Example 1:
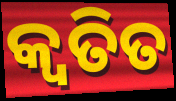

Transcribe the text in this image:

କ୍ୱତିତ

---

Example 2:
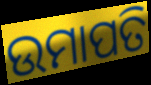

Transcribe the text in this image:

ଉମାପତି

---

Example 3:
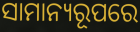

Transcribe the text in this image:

ସାମାନ୍ୟରୂପରେ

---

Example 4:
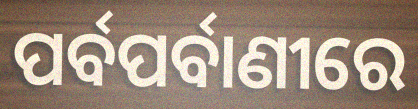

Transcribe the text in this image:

ପର୍ବପର୍ବାଣୀରେ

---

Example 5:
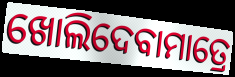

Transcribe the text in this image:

ଖୋଲିଦେବାମାତ୍ରେ